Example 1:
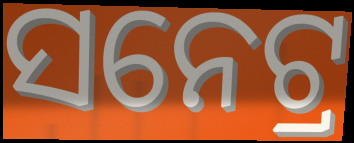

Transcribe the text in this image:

ସନେଟ୍ର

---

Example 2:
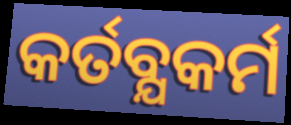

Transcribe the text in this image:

କର୍ତବ୍ଯକର୍ମ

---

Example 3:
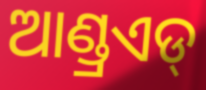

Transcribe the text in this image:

ଆଣ୍ଡ୍ରଏଡ୍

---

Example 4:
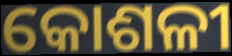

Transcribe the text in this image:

କୋଶଳୀ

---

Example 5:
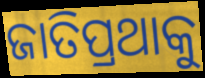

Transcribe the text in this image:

ଜାତିପ୍ରଥାକୁ